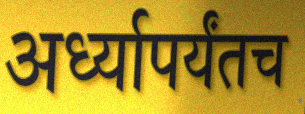
अर्ध्यापर्यंतच